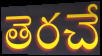
తెరచే